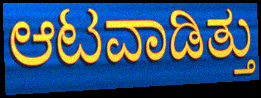
ಆಟವಾಡಿತ್ತು